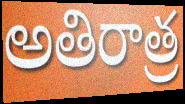
అతిరాత్ర